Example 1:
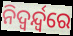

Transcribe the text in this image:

ନିଦ୍ଵର୍ନ୍ଦ୍ୱରେ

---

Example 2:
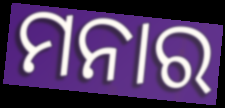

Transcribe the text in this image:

ମନାର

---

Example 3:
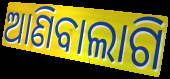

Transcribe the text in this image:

ଆଣିବାଲାଗି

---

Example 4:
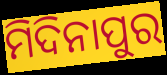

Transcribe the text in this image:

ମିଦିନାପୁର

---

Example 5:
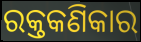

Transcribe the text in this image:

ରକ୍ତକଣିକାର